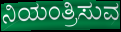
ನಿಯಂತ್ರಿಸುವ